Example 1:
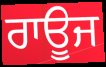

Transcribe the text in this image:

ਰਾਊਜ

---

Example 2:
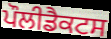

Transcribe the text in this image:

ਪੌਲੀਡੈਕਟਸ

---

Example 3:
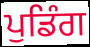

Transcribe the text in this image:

ਪੁਡਿੰਗ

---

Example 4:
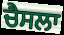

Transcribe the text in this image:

ਚੈਸਲਾ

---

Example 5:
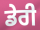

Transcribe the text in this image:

ਡੇਰੀ